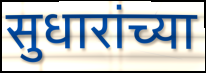
सुधारांच्या